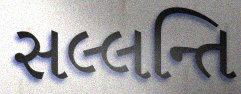
સલ્લન્તિ